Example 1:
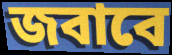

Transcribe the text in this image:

জবাবে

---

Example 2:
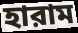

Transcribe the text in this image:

হারাম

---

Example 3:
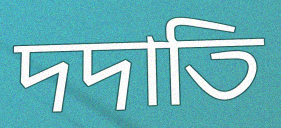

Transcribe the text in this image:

দদাতি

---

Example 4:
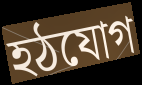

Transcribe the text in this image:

হঠযোগ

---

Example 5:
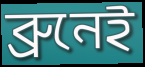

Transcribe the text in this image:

ব্রুনেই